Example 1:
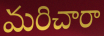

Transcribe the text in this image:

మరిచారా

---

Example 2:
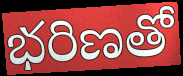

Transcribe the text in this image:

భరిణతో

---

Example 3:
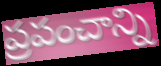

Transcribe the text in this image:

ప్రపంచాన్ని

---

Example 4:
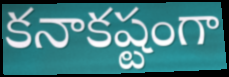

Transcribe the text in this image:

కనాకష్టంగా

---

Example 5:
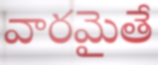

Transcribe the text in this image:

వారమైతే